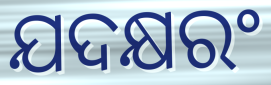
ଯଦକ୍ଷରଂ